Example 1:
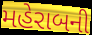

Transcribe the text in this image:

મહેરાબની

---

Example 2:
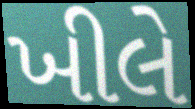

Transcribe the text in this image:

ખીલે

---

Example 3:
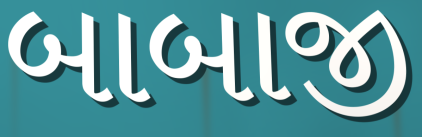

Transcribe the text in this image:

બાબાજી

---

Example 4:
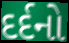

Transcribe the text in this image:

દર્દનો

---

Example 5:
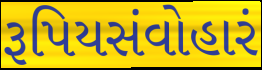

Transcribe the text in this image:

રૂપિયસંવોહારં